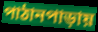
পাঠানপাড়ায়